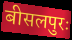
बीसलपुरः